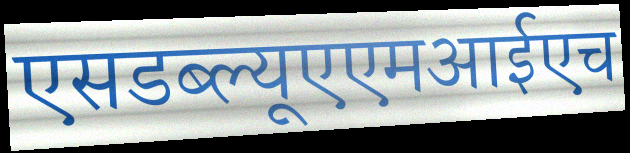
एसडब्ल्यूएएमआईएच